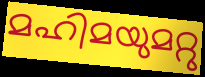
മഹിമയുമറ്റു